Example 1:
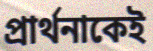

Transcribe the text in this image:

প্রার্থনাকেই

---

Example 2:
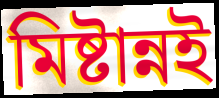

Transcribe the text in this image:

মিষ্টান্নই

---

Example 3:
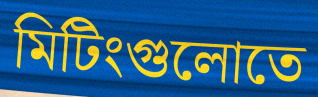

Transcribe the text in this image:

মিটিংগুলোতে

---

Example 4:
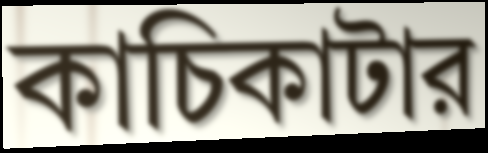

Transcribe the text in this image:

কাচিকাটার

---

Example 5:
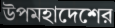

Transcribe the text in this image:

উপমহাদেশের